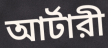
আর্টারী